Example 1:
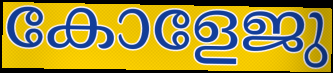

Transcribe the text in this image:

കോളേജു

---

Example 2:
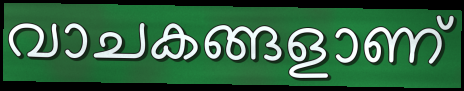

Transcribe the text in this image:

വാചകങ്ങളാണ്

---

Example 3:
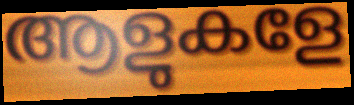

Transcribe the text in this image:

ആളുകളേ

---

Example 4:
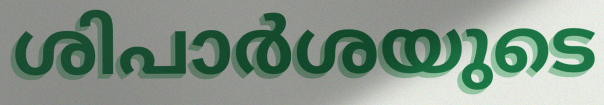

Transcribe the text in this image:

ശിപാർശയുടെ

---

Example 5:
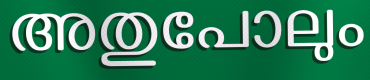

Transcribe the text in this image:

അതുപോലും